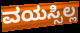
ವಯಸ್ಸಿಲ್ಲ